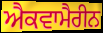
ਐਕਵਾਮੈਰੀਨ